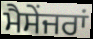
ਮੈਸੇਂਜਰਾਂ